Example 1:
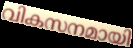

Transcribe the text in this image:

വികസനമായി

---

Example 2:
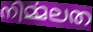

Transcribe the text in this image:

നിൎമ്മലത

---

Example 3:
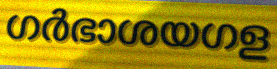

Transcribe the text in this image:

ഗർഭാശയഗള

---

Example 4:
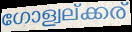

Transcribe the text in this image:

ഗോള്വല്ക്കര്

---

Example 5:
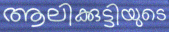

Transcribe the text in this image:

ആലിക്കുട്ടിയുടെ